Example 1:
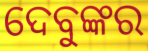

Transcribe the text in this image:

ଦେବୁଙ୍କର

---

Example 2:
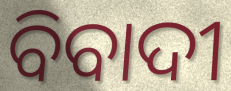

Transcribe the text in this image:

ବିବାଦୀ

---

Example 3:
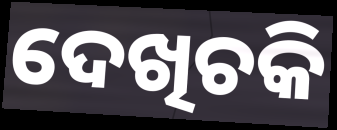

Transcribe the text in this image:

ଦେଖିଚକି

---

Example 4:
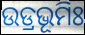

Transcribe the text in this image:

ଉଡ୍ରଭୂମିଃ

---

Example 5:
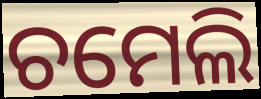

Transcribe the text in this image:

ଚମେଲି